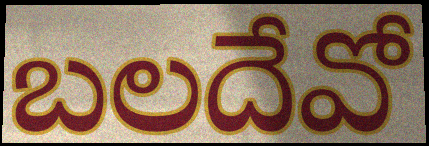
బలదేవో